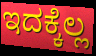
ಇದಕ್ಕೆಲ್ಲ